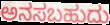
ಅನಸಬಹುದು